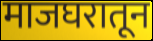
माजघरातून